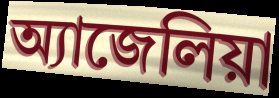
অ্যাজেলিয়া